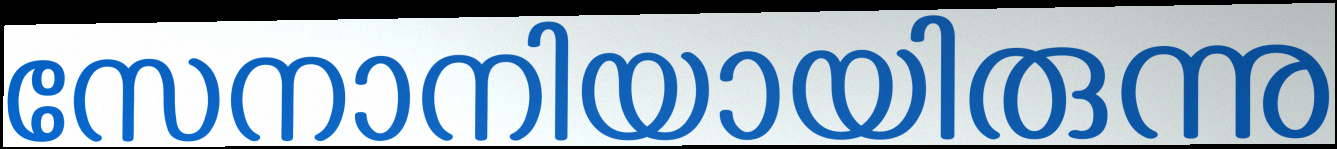
സേനാനിയായിരുന്നു